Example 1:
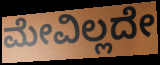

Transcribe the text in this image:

ಮೇವಿಲ್ಲದೇ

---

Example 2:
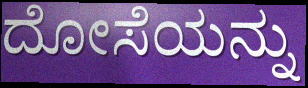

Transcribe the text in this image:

ದೋಸೆಯನ್ನು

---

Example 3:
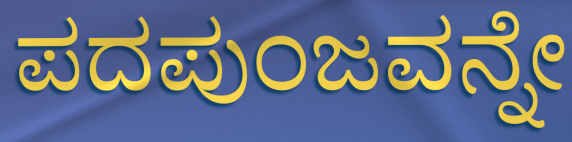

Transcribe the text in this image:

ಪದಪುಂಜವನ್ನೇ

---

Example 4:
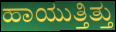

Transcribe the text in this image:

ಹಾಯುತ್ತಿತ್ತು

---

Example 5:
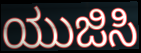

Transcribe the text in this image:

ಯುಜಿಸಿ